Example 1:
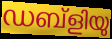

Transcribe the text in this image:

ഡബ്ളിയു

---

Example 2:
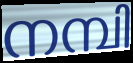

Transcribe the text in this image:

നമ്പി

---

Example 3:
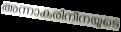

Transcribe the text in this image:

അന്നാകരിനീനയുടെ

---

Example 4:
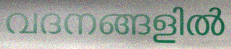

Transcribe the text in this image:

വദനങ്ങളിൽ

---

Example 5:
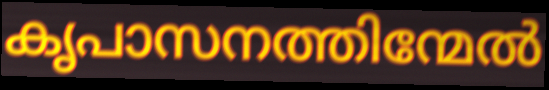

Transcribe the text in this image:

കൃപാസനത്തിന്മേൽ